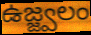
ఉజ్జ్వలం